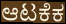
ಆಟಕೆಕ